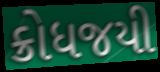
ક્રોધજયી